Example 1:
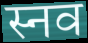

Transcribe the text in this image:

स्नव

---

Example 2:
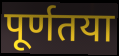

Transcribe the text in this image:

पूर्णतया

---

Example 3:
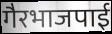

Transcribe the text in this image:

गैरभाजपाई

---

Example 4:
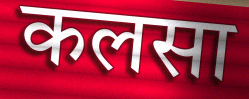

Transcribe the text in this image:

कलसा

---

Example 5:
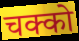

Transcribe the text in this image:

चक्को